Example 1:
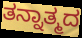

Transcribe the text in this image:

ತನ್ನಾತ್ಮದ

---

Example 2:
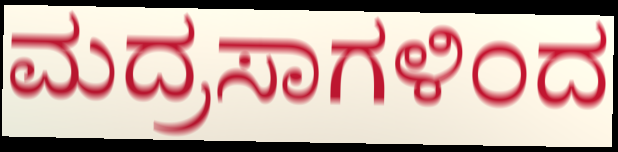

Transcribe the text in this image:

ಮದ್ರಸಾಗಳಿಂದ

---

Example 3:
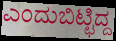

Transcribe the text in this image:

ಎಂದುಬಿಟ್ಟಿದ್ದ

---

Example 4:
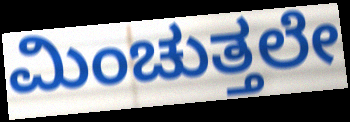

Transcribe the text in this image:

ಮಿಂಚುತ್ತಲೇ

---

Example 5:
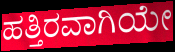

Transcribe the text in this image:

ಹತ್ತಿರವಾಗಿಯೇ